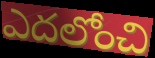
ఎదలోంచి